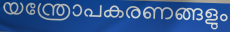
യന്ത്രോപകരണങ്ങളും